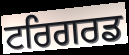
ਟਰਿਗਰਡ